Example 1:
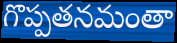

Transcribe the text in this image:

గొప్పతనమంతా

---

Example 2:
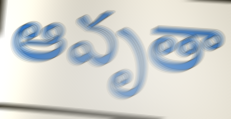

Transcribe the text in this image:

ఆవృతా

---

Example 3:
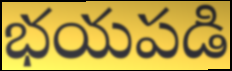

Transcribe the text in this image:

భయపడి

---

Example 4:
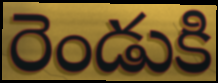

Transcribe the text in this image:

రెండుకి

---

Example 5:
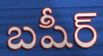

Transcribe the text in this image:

బషీర్